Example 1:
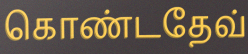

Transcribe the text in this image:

கொண்டதேவ்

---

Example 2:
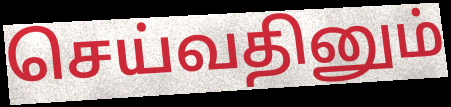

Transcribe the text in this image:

செய்வதினும்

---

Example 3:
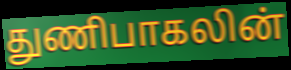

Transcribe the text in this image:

துணிபாகலின்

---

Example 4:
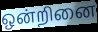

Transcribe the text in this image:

ஒன்றினை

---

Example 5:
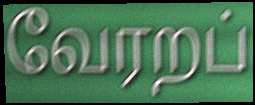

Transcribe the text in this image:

வேரறப்